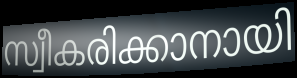
സ്വീകരിക്കാനായി